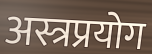
अस्त्रप्रयोग